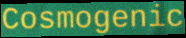
Cosmogenic